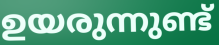
ഉയരുന്നുണ്ട്